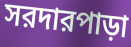
সরদারপাড়া